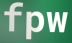
fpw